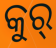
କୁର୍